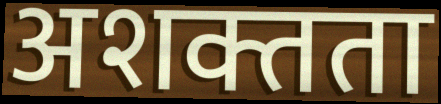
अशक्‍तता